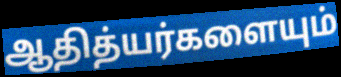
ஆதித்யர்களையும்